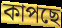
কাপছে